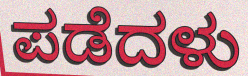
ಪಡೆದಳು